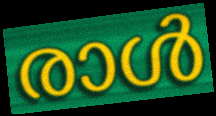
രാൾ